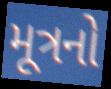
મૂત્રનો